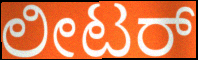
ಲೀಟರ್